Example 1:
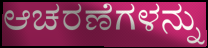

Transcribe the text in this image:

ಆಚರಣೆಗಳನ್ನು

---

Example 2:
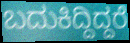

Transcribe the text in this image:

ಬದುಕಿದ್ದಿದ್ದರೆ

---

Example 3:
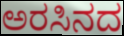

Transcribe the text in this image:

ಅರಸಿನದ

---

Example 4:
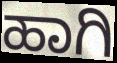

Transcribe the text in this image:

ಹಾಗಿ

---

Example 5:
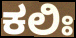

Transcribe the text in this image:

ಕಲಿಃ